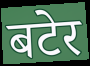
बटेर